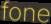
fone